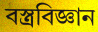
বস্ত্রবিজ্ঞান